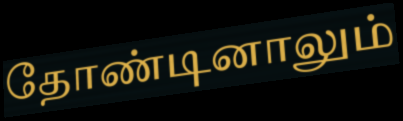
தோண்டினாலும்